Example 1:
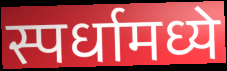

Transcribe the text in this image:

स्पर्धामध्ये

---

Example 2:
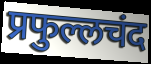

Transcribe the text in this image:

प्रफुल्लचंद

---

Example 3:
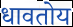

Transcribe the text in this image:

धावतोय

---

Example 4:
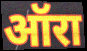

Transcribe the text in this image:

ऑरा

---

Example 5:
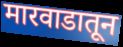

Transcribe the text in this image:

मारवाडातून